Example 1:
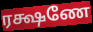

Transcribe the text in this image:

ரக்ஷணே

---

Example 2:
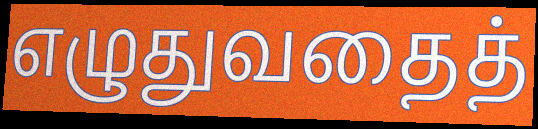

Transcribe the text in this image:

எழுதுவதைத்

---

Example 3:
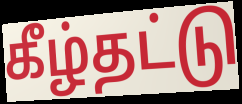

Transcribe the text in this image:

கீழ்தட்டு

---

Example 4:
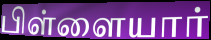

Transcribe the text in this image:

பிள்ளையார்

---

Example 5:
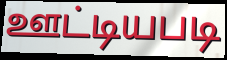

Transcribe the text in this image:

ஊட்டியபடி